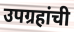
उपग्रहांची